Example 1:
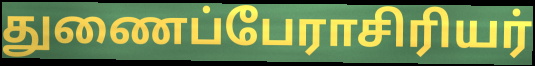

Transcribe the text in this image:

துணைப்பேராசிரியர்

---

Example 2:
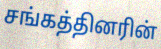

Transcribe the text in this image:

சங்கத்தினரின்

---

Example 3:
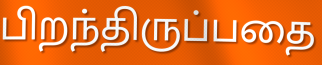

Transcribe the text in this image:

பிறந்திருப்பதை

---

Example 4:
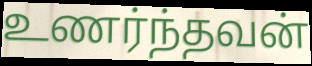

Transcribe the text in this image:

உணர்ந்தவன்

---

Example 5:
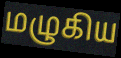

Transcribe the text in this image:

மழுகிய